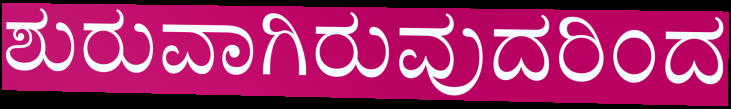
ಶುರುವಾಗಿರುವುದರಿಂದ